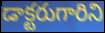
డాక్టరుగారిని